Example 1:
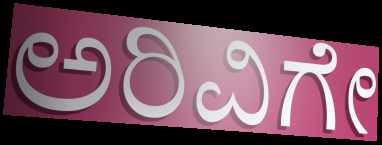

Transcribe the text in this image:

ಅರಿವಿಗೇ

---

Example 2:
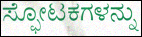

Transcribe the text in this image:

ಸ್ಫೋಟಕಗಳನ್ನು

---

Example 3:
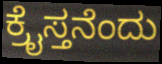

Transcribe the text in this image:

ಕ್ರೈಸ್ತನೆಂದು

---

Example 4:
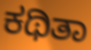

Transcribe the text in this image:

ಕಥಿತಾ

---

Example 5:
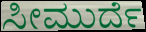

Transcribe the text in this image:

ಸೀಮುರ್ದೆ